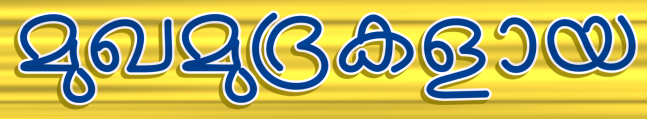
മുഖമുദ്രകളായ